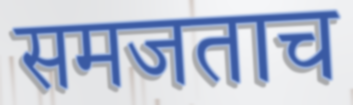
समजताच